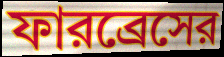
ফারব্রেসের